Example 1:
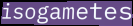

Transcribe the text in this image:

isogametes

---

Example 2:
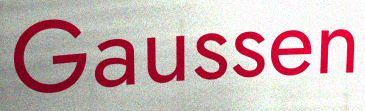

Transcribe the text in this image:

Gaussen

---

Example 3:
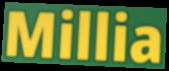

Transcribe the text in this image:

Millia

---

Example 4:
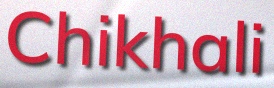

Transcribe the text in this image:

Chikhali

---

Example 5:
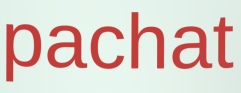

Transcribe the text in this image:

pachat